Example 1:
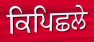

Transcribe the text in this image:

ਕਿਪਿਛਲੇ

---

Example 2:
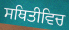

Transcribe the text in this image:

ਸਥਿਤੀਵਿਚ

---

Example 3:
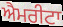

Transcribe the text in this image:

ਐਮਰੀਟਾ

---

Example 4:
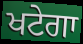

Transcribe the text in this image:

ਖਟੇਗਾ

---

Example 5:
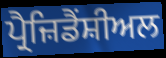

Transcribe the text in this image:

ਪ੍ਰੈਜ਼ਿਡੈਂਸ਼ੀਅਲ